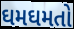
ઘમઘમતો